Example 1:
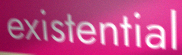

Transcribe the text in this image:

existential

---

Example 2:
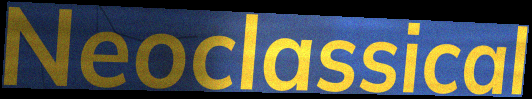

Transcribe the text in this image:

Neoclassical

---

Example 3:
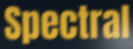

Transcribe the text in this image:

Spectral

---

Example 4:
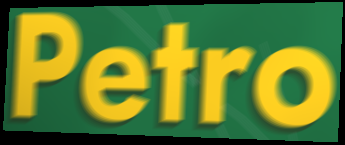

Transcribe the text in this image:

Petro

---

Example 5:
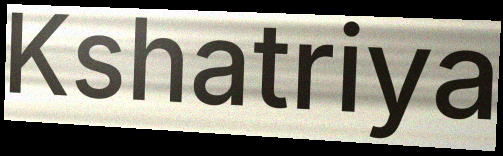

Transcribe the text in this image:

Kshatriya